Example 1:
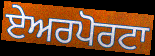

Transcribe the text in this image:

ਏਅਰਪੋਰਟਾ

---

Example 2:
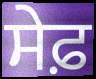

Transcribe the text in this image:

ਸੇਫ਼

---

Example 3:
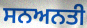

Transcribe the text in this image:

ਸਨਅਨਤੀ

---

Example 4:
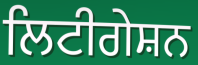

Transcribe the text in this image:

ਲਿਟੀਗੇਸ਼ਨ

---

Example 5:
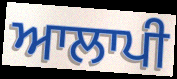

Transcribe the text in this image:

ਆਲਾਪੀ